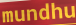
mundhu